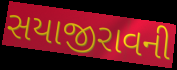
સયાજીરાવની